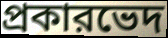
প্রকারভেদ